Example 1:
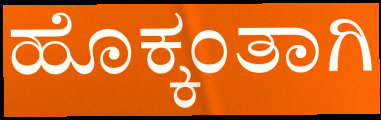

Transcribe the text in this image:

ಹೊಕ್ಕಂತಾಗಿ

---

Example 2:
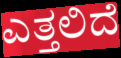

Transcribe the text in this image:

ಎತ್ತಲಿದೆ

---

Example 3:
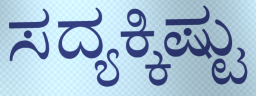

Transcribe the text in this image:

ಸದ್ಯಕ್ಕಿಷ್ಟು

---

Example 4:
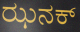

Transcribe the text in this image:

ಝನಕ್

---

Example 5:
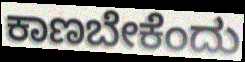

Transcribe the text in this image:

ಕಾಣಬೇಕೆಂದು